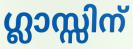
ഗ്ലാസ്സിന്